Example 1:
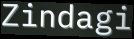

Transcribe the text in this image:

Zindagi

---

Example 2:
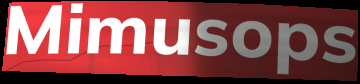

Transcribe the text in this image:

Mimusops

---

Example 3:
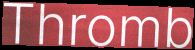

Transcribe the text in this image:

Thromb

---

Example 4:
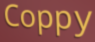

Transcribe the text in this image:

Coppy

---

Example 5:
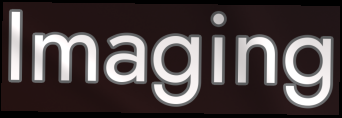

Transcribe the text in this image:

Imaging